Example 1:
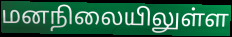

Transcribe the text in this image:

மனநிலையிலுள்ள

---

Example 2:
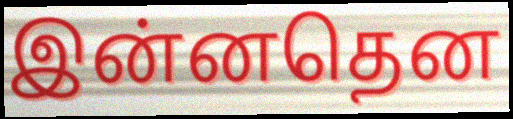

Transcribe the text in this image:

இன்னதென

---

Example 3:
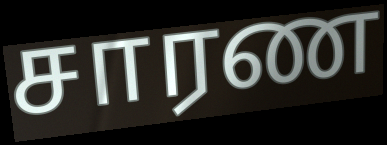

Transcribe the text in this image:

சாரண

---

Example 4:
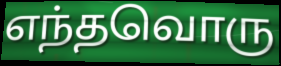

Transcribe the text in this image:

எந்தவொரு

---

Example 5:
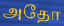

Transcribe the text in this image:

அதோ